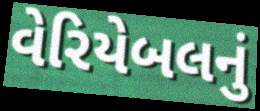
વેરિયેબલનું